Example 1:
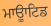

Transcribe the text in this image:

ਮਾਊਾਟਿਡ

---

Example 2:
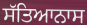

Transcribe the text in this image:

ਸੱਤਿਆਨਾਸ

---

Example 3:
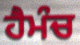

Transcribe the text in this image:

ਹੈਮੰਚ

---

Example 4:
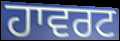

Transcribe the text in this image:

ਹਾਵਰਟ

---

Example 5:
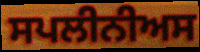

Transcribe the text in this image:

ਸਪਲੀਨੀਅਸ